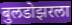
बुलडोझरला